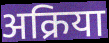
अक्रिया